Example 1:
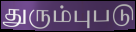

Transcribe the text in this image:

துரும்புபடு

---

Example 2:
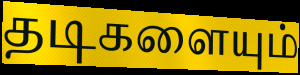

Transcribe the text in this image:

தடிகளையும்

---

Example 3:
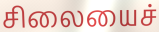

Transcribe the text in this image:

சிலையைச்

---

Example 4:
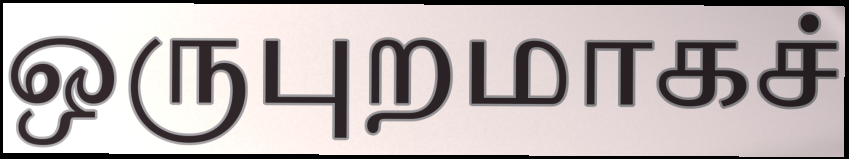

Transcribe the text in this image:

ஒருபுறமாகச்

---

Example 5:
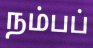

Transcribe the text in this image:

நம்பப்